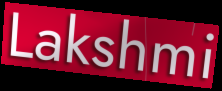
Lakshmi